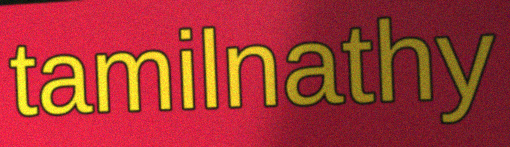
tamilnathy